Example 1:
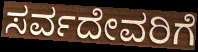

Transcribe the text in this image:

ಸರ್ವದೇವರಿಗೆ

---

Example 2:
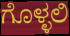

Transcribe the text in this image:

ಗೊಳ್ಳಲಿ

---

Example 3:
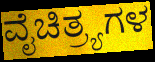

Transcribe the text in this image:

ವೈಚಿತ್ರ್ಯಗಳ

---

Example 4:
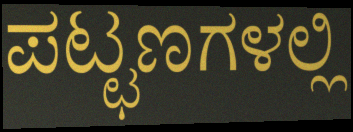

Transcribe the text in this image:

ಪಟ್ಟಣಗಳಲ್ಲಿ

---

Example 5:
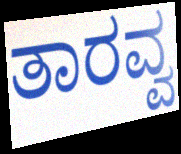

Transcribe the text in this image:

ತಾರವ್ವ